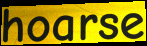
hoarse